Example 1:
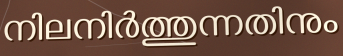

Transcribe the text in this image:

നിലനിർത്തുന്നതിനും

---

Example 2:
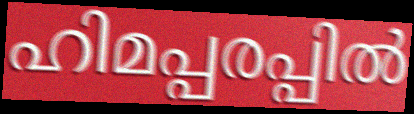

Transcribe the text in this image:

ഹിമപ്പരപ്പിൽ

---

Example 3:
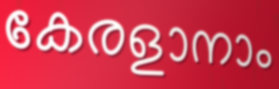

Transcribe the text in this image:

കേരളാനാം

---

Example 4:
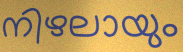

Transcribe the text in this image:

നിഴലായും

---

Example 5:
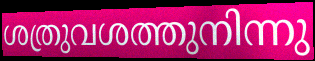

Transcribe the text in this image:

ശത്രുവശത്തുനിന്നു